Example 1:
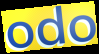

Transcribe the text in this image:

odo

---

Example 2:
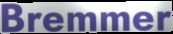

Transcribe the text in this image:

Bremmer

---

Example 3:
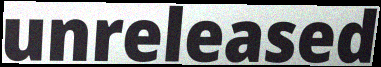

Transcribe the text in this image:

unreleased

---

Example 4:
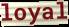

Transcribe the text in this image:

loyal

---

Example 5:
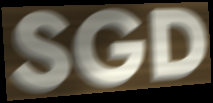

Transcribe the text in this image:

SGD